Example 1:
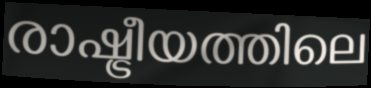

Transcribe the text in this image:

രാഷ്ട്രീയത്തിലെ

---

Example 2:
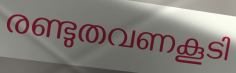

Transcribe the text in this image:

രണ്ടുതവണകൂടി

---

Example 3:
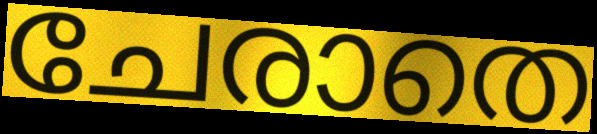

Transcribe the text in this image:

ചേരാതെ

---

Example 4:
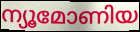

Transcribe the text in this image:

ന്യൂമോണിയ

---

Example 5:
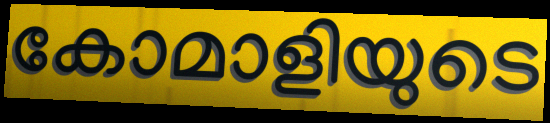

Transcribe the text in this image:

കോമാളിയുടെ